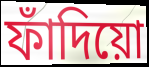
ফাঁদিয়ো